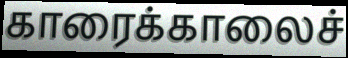
காரைக்காலைச்